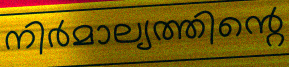
നിർമാല്യത്തിന്റെ